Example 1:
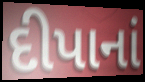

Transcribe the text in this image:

દીપાનાં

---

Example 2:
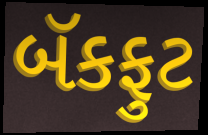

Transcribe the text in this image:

બૅકફુટ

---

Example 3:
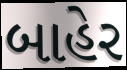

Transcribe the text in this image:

બાહેર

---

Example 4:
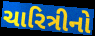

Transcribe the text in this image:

ચારિત્રીનો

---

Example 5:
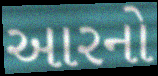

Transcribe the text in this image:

આરનો